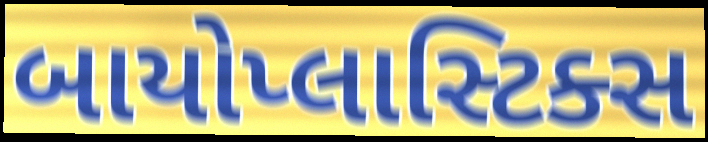
બાયોપ્લાસ્ટિક્સ